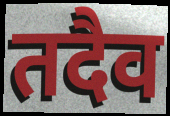
तदैव